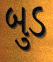
બુડ